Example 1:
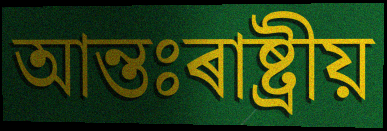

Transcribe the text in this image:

আন্তঃৰাষ্ট্ৰীয়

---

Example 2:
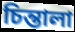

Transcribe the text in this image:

চিন্তালা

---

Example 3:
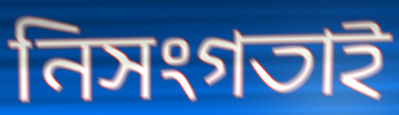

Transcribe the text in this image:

নিসংগতাই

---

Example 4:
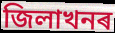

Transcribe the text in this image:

জিলাখনৰ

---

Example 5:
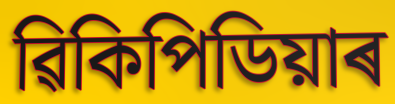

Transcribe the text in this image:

ৱিকিপিডিয়াৰ